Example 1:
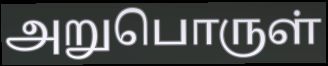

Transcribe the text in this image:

அறுபொருள்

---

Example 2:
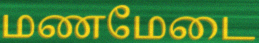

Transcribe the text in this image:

மணமேடை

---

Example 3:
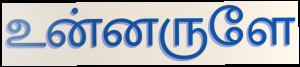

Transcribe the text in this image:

உன்னருளே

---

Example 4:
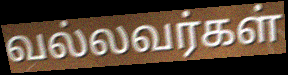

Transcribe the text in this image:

வல்லவர்கள்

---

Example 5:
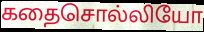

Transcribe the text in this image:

கதைசொல்லியோ